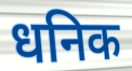
धनिक